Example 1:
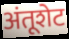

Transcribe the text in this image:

अंतूशेट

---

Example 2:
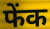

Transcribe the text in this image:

फेंक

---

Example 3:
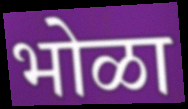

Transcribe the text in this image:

भोळा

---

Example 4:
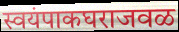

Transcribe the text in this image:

स्वयंपाकघराजवळ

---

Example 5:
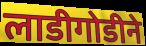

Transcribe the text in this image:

लाडीगोडीने